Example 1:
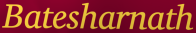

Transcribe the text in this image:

Batesharnath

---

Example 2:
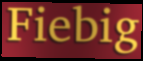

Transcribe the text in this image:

Fiebig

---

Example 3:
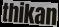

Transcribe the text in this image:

thikan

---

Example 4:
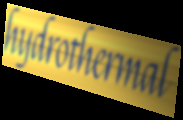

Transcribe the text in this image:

hydrothermal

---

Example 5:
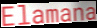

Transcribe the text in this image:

Elamana